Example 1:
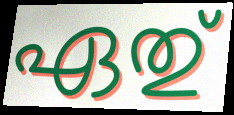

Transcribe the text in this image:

ഏതു്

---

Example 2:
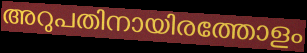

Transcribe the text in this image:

അറുപതിനായിരത്തോളം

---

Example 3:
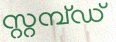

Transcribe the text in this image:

സ്റ്റമ്പ്ഡ്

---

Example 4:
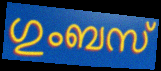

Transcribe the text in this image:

ഗുംബസ്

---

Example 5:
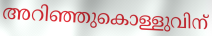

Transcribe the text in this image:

അറിഞ്ഞുകൊള്ളുവിന്